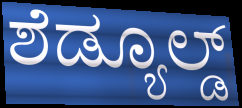
ಶೆಡ್ಯೂಲ್ಡ್